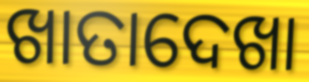
ଖାତାଦେଖା